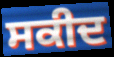
ਸਕੀਦ